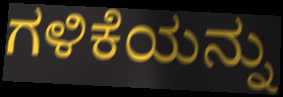
ಗಳಿಕೆಯನ್ನು